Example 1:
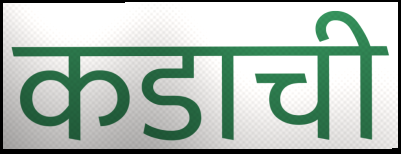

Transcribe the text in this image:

कडाची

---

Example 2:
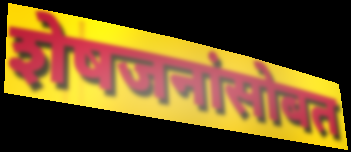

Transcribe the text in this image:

शेषजनांसोबत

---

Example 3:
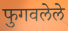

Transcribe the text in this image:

फुगवलेले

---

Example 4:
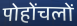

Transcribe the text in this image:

पोहोंचलों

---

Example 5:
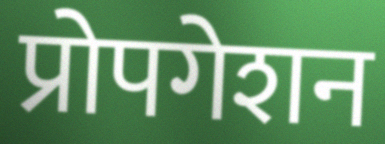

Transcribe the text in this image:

प्रोपगेशन